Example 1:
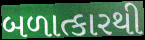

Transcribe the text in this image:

બળાત્કારથી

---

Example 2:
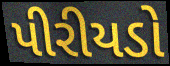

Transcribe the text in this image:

પીરીયડો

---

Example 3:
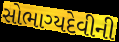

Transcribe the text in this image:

સોભાગ્યદેવીની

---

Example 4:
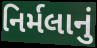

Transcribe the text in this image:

નિર્મલાનું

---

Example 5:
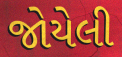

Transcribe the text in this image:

જોયેલી